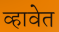
व्हावेत